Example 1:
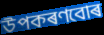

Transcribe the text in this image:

উপকৰণবোৰ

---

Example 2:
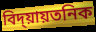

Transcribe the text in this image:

বিদ্য়ায়তনিক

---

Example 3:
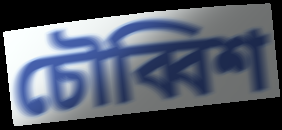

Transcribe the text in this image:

চৌব্বিশ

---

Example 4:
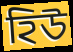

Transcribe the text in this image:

হিউ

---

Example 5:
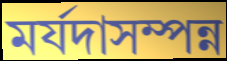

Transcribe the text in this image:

মৰ্যদাসম্পন্ন